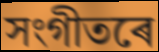
সংগীতৰে